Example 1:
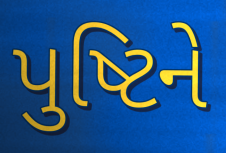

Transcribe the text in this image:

પુષ્ટિને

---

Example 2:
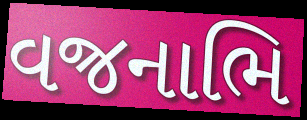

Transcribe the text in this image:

વજ્રનાભિ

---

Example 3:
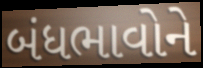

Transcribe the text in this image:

બંધભાવોને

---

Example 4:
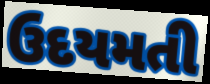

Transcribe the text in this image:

ઉદયમતી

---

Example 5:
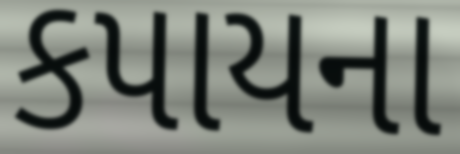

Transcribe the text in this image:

કપાયના